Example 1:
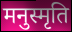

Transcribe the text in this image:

मनुस्मृति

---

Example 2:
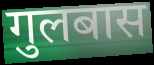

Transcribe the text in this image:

गुलबास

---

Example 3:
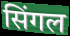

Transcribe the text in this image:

सिंगल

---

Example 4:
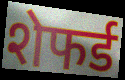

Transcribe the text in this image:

शेफर्ड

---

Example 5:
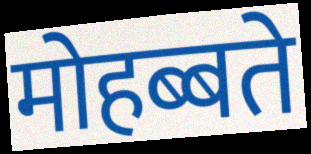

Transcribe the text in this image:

मोहब्बते